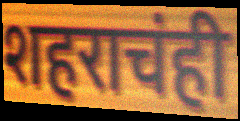
शहराचंही